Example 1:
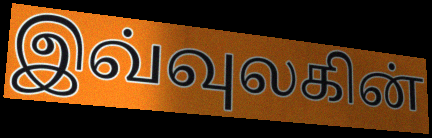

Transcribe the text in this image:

இவ்வுலகின்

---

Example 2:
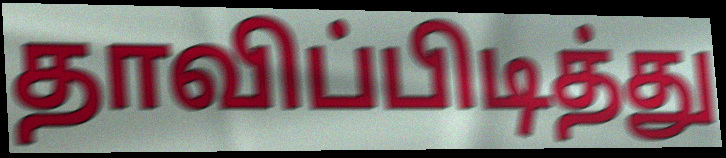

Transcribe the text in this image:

தாவிப்பிடித்து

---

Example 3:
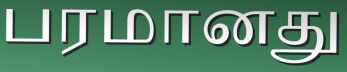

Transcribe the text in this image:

பரமானது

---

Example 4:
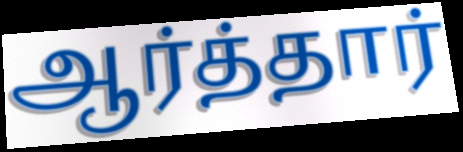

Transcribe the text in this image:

ஆர்த்தார்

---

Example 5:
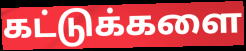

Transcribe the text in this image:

கட்டுக்களை